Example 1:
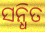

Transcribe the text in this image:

ସନ୍ଧିତ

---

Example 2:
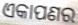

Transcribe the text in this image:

ଏକାପଣର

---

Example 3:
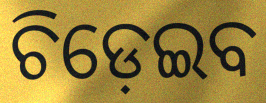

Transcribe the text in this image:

ଚିଡ଼େଇବ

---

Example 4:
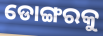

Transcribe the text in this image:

ଡୋଙ୍ଗରକୁ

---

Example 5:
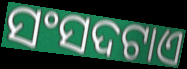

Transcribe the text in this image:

ସଂସଦଟାଏ